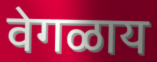
वेगळाय